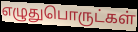
எழுதுபொருட்கள்